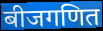
बीजगणित